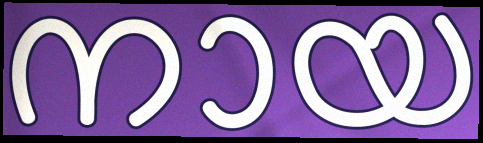
നായ